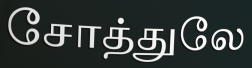
சோத்துலே